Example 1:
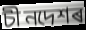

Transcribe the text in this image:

চীনদেশৰ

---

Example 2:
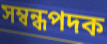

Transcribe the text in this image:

সম্বন্ধপদক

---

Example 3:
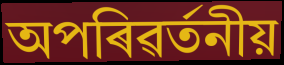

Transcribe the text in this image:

অপৰিৱৰ্তনীয়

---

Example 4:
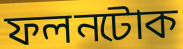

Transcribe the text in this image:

ফলনটোক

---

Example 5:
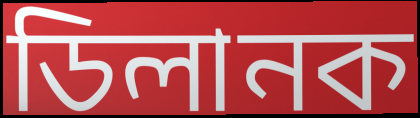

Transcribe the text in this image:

ডিলানক